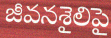
జీవనశైలిపై